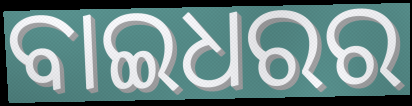
ବାଇଧରର